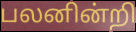
பலனின்றி